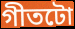
গীতটো